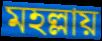
মহল্লায়